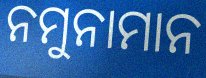
ନମୁନାମାନ